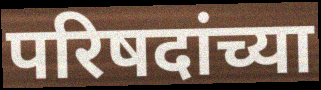
परिषदांच्या